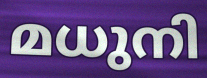
മധുനി